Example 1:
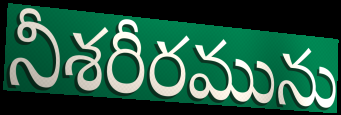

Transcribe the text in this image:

నీశరీరమును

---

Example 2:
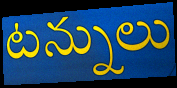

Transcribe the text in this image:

టన్నులు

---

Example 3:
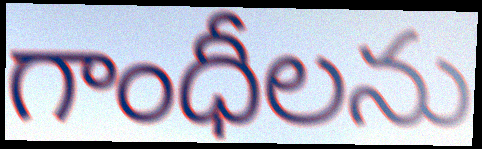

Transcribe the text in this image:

గాంధీలను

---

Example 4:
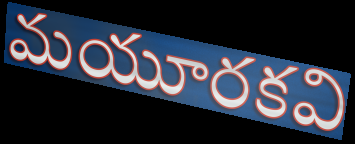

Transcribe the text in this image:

మయూరకవి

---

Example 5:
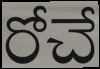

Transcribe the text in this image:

రోచే